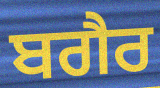
ਬਗੈਰ